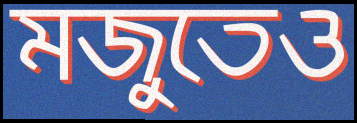
মজুতেও